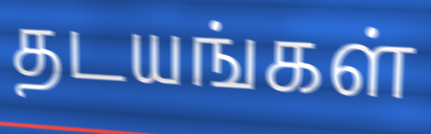
தடயங்கள்